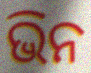
ଭିନ